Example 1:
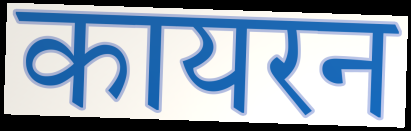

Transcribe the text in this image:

कायरन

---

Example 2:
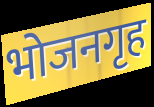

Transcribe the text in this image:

भोजनगृह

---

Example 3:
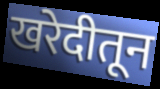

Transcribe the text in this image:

खरेदीतून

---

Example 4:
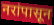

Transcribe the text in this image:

नरांपासून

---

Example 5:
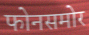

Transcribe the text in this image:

फोनसमोर